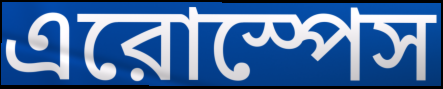
এরোস্পেস